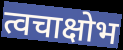
त्वचाक्षोभ